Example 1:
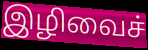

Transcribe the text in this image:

இழிவைச்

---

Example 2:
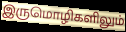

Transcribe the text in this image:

இருமொழிகளிலும்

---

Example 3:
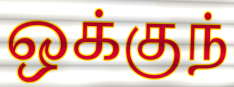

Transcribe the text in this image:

ஒக்குந்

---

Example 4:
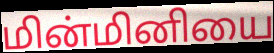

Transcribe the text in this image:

மின்மினியை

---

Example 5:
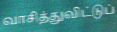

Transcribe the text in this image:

வாசித்துவிட்டுப்